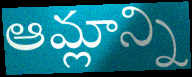
ఆమ్లాన్ని